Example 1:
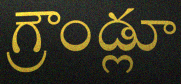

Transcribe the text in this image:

గ్రౌండ్లూ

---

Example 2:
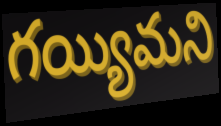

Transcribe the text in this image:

గయ్యిమని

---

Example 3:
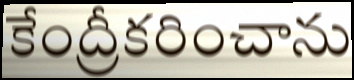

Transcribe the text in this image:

కేంద్రీకరించాను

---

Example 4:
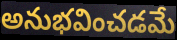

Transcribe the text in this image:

అనుభవించడమే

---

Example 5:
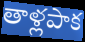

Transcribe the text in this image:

తాళ్లపాక